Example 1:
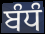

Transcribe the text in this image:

ਬੰਧੰ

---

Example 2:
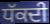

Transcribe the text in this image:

ਧੱਕਦੀ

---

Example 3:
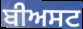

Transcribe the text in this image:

ਬੀਅਸਟ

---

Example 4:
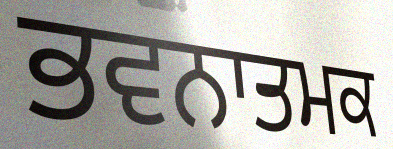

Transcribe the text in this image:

ਭਵਨਾਤਮਕ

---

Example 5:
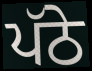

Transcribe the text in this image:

ਪੱਠੇ